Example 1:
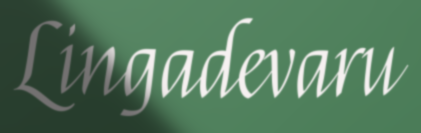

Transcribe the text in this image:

Lingadevaru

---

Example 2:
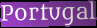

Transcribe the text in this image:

Portugal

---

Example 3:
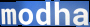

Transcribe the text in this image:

modha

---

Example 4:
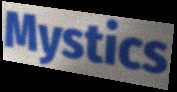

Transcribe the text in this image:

Mystics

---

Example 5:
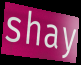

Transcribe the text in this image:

shay